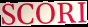
SCORI